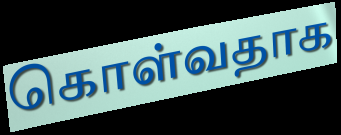
கொள்வதாக